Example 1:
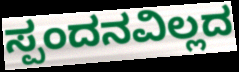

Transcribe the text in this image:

ಸ್ಪಂದನವಿಲ್ಲದ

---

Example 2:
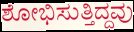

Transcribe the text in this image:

ಶೋಭಿಸುತ್ತಿದ್ದವು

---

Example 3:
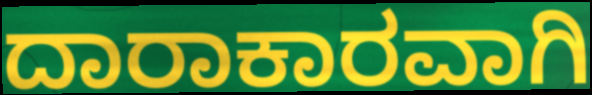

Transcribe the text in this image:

ದಾರಾಕಾರವಾಗಿ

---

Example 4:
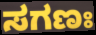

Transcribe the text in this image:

ಸಗಣಃ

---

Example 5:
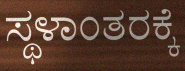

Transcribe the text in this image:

ಸ್ಥಳಾಂತರಕ್ಕೆ